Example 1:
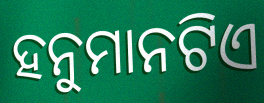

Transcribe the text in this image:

ହନୁମାନଟିଏ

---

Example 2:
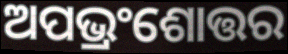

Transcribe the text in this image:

ଅପଭ୍ରଂଶୋତ୍ତର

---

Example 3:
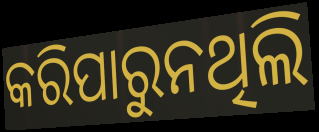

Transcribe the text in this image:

କରିପାରୁନଥିଲି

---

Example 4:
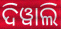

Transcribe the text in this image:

ଦିୱାଲି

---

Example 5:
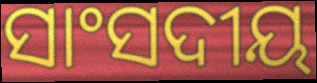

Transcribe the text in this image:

ସାଂସଦୀୟ